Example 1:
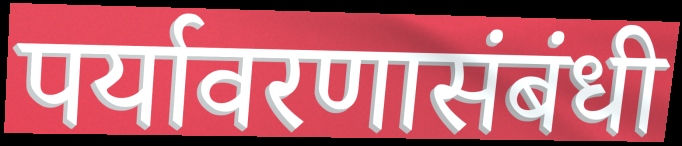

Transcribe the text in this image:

पर्यावरणासंबंधी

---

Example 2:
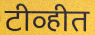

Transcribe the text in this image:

टीव्हीत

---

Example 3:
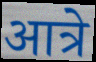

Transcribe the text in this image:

आत्रे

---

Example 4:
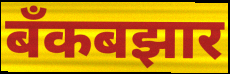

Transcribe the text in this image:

बँकबझार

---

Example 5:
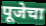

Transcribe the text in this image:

पूजेचा